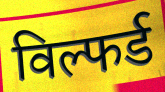
विल्फर्ड